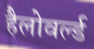
हैलोवर्ल्ड